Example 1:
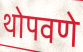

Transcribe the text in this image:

थोपवणे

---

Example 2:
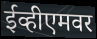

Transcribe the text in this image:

ईव्हीएमवर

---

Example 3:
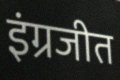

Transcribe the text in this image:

इंग्रजीत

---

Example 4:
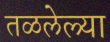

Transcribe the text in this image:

तळलेल्या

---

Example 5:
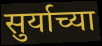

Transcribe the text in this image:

सुर्याच्या